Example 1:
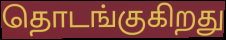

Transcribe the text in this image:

தொடங்குகிறது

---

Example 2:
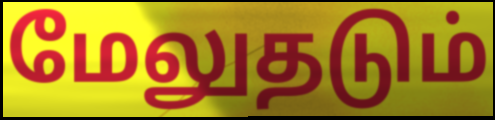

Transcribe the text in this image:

மேலுதடும்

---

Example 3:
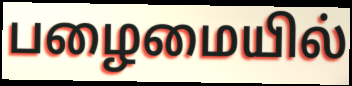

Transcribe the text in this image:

பழைமையில்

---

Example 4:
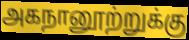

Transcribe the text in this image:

அகநானூற்றுக்கு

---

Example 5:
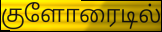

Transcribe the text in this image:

குளோரைடில்